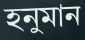
হনুমান